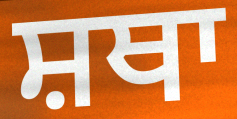
ਸ਼ਥਾ